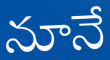
నూనే